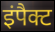
इंपैक्ट